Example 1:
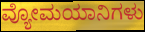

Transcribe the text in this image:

ವ್ಯೋಮಯಾನಿಗಳು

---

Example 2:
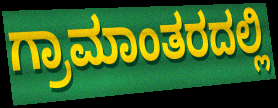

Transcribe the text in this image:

ಗ್ರಾಮಾಂತರದಲ್ಲಿ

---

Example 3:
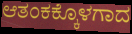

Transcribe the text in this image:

ಆತಂಕಕ್ಕೊಳಗಾದ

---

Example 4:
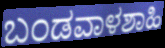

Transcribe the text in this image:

ಬಂಡವಾಳಶಾಹಿ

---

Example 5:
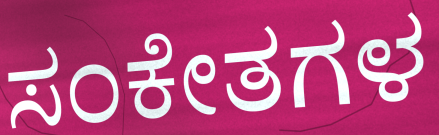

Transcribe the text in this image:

ಸಂಕೇತಗಳ